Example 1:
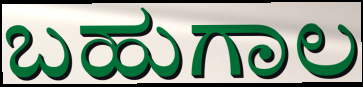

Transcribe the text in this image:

ಬಹುಗಾಲ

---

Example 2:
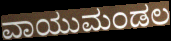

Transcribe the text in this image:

ವಾಯುಮಂಡಲ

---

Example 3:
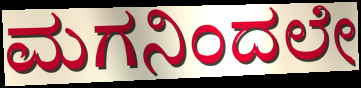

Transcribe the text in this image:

ಮಗನಿಂದಲೇ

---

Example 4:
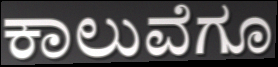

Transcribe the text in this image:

ಕಾಲುವೆಗೂ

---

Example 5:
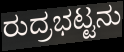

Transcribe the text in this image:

ರುದ್ರಭಟ್ಟನು